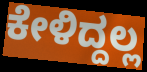
ಕೇಳಿದ್ದಲ್ಲ